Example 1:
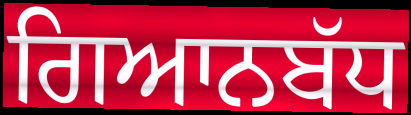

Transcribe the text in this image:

ਗਿਆਨਬੱਧ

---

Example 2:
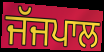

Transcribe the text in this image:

ਜੱਜਪਾਲ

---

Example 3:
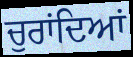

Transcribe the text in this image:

ਚੁਰਾਂਦਿਆਂ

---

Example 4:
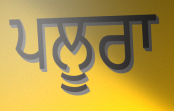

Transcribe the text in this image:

ਪਲੂਰਾ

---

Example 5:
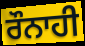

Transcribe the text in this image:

ਰੌਨਾਹੀ